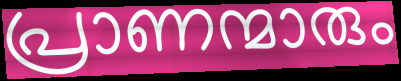
പ്രാണന്മാരും